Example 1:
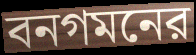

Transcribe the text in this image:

বনগমনের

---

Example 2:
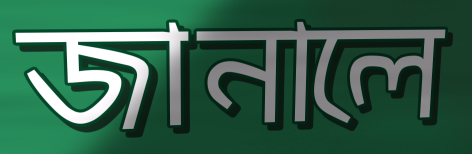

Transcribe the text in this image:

জানালে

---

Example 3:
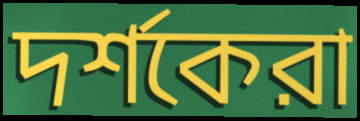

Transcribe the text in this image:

দর্শকেরা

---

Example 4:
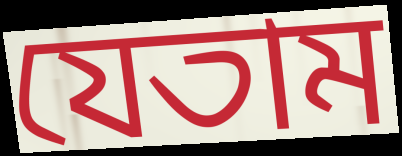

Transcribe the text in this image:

যেতাম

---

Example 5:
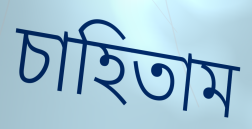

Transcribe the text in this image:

চাহিতাম